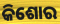
କିଶୋର